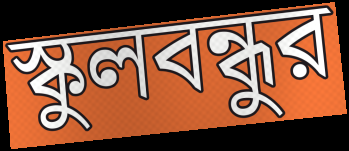
স্কুলবন্ধুর